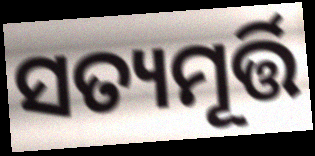
ସତ୍ୟମୂର୍ତ୍ତି